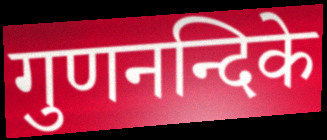
गुणनन्दिके